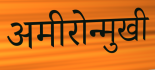
अमीरोन्मुखी